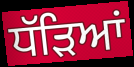
ਧੱੜਿਆਂ